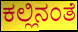
ಕಲ್ಲಿನಂತೆ